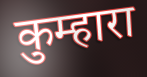
कुम्हारा